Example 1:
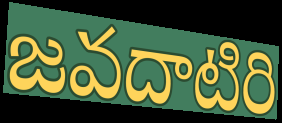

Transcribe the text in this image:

జవదాటిరి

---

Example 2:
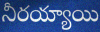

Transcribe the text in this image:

నీరయ్యాయి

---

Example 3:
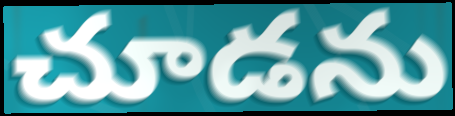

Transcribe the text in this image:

చూడను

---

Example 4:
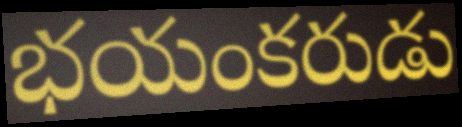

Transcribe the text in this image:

భయంకరుడు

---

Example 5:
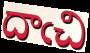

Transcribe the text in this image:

దాఁచి